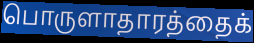
பொருளாதாரத்தைக்